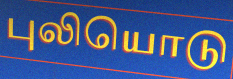
புலியொடு